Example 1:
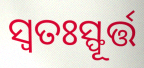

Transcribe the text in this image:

ସ୍ୱତଃସ୍ଫୂର୍ତ୍ତ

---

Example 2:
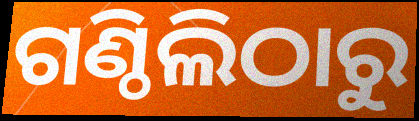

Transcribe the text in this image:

ଗଣ୍ଠିଲିଠାରୁ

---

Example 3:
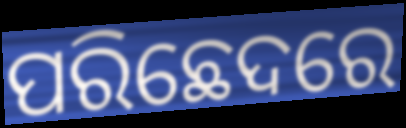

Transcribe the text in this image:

ପରିଛେଦରେ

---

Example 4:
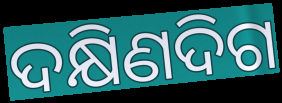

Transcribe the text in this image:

ଦକ୍ଷିଣଦିଗ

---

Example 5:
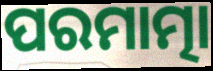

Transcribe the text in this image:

ପରମାତ୍ମା